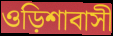
ওড়িশাবাসী